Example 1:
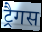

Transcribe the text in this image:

ट्रैगस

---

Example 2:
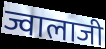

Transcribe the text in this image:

ज्वालाजी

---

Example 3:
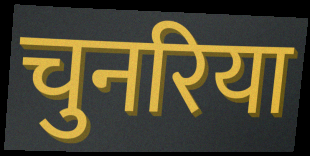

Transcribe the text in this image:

चुनरिया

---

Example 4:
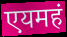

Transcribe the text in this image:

एयमहं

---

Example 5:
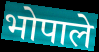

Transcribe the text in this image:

भोपाले